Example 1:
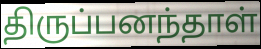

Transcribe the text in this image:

திருப்பனந்தாள்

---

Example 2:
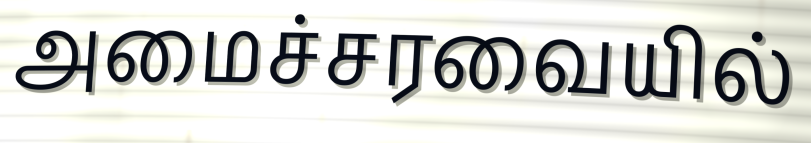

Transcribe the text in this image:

அமைச்சரவையில்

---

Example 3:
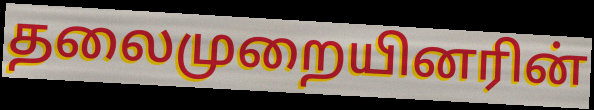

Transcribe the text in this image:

தலைமுறையினரின்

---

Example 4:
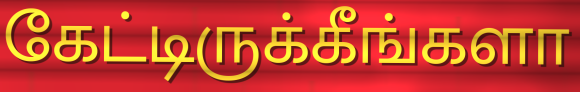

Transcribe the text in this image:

கேட்டிருக்கீங்களா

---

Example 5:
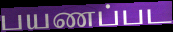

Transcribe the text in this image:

பயணப்பட